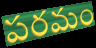
పరమం